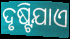
ଦୃଷ୍ଟିଯାଏ